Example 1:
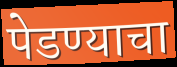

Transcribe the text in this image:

पेडण्याचा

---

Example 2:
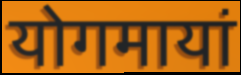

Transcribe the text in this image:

योगमायां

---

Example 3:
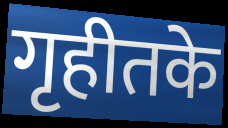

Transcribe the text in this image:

गृहीतके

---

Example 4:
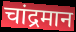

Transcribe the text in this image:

चांद्रमान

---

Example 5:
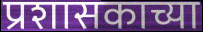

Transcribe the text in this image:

प्रशासकाच्या